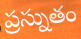
ప్రస్నుతం